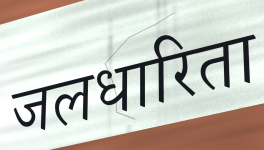
जलधारिता